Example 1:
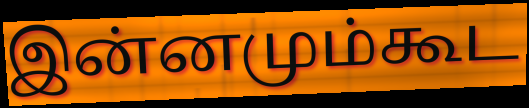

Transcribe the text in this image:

இன்னமும்கூட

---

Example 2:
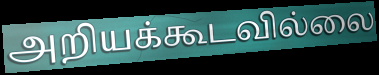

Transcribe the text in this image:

அறியக்கூடவில்லை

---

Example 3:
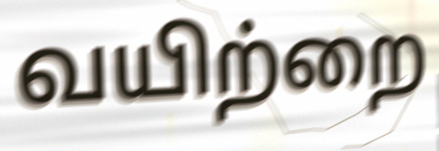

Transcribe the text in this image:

வயிற்றை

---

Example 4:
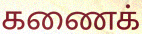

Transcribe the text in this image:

கணைக்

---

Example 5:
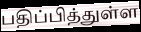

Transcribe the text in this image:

பதிப்பித்துள்ள